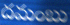
దమంబు